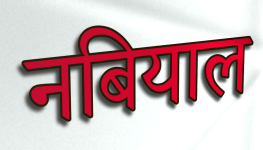
नबियाल